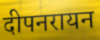
दीपनरायन